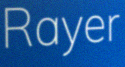
Rayer